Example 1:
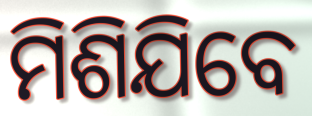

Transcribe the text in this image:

ମିଶିଯିବେ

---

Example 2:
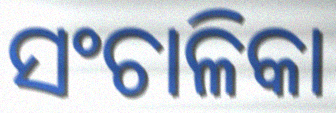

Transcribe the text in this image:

ସଂଚାଳିକା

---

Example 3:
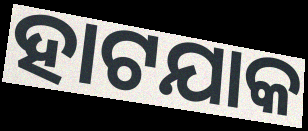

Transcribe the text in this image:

ହାଟଯାକ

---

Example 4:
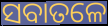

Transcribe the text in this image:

ସବାତଳେ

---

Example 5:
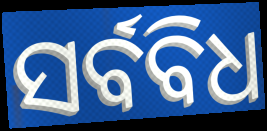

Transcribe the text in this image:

ସର୍ବବିଧ